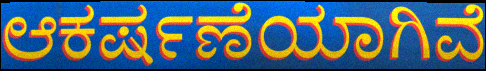
ಆಕರ್ಷಣೆಯಾಗಿವೆ